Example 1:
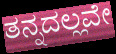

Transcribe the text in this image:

ತನ್ನದಲ್ಲವೇ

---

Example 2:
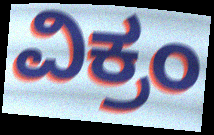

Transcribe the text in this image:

ವಿಕ್ರಂ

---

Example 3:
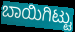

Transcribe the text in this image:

ಬಾಯಿಗಿಟ್ಟು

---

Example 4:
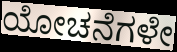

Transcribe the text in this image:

ಯೋಚನೆಗಳೇ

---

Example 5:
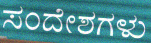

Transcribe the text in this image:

ಸಂದೇಶಗಳು